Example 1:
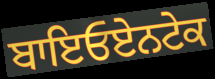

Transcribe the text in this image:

ਬਾਇਓਏਨਟੇਕ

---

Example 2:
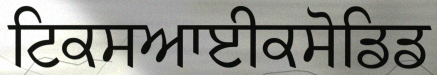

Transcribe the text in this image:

ਟਿਕਸਆਈਕਸੋਡਿਡ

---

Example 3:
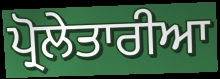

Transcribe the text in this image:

ਪ੍ਰੋਲੇਤਾਰੀਆ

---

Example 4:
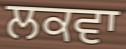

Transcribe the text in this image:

ਲਕਵਾ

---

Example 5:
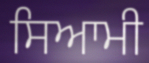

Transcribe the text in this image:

ਸਿਆਮੀ